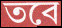
তবে